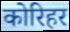
कोरिहर